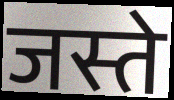
जस्ते